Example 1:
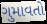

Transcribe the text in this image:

ગુમાવતો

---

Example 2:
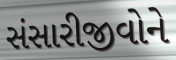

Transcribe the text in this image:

સંસારીજીવોને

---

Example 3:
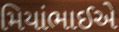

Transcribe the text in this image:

મિયાંભાઈએ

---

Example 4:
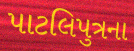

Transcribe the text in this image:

પાટલિપુત્રના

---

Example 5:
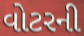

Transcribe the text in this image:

વોટરની